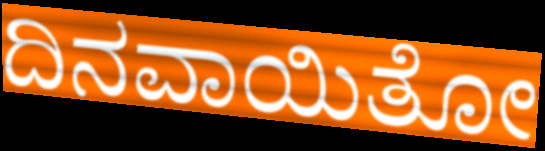
ದಿನವಾಯಿತೋ